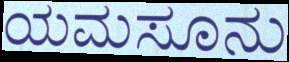
ಯಮಸೂನು